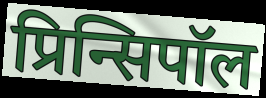
प्रिन्सिपॉल